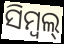
ସିମ୍ବଲ୍